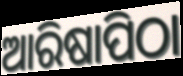
ଆରିଷାପିଠା